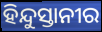
ହିନ୍ଦୁସ୍ତାନୀର